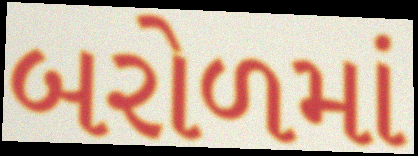
બરોળમાં